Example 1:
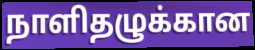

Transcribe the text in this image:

நாளிதழுக்கான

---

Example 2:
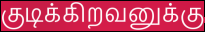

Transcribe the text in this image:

குடிக்கிறவனுக்கு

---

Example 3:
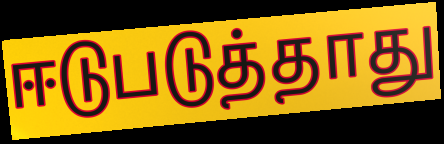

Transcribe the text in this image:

ஈடுபடுத்தாது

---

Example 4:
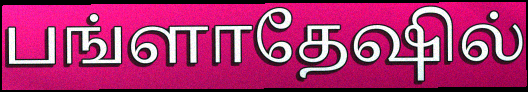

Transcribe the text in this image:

பங்ளாதேஷில்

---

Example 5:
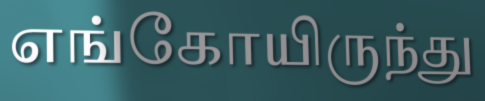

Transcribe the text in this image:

எங்கோயிருந்து